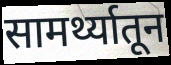
सामर्थ्यातून